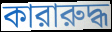
কারারুদ্ধ